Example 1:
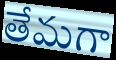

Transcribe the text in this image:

తేమగా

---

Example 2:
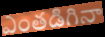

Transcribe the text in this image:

ఎంతడిగినా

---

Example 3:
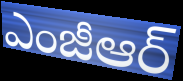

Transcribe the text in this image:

ఎంజీఆర్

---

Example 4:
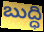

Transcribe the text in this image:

బుద్ధి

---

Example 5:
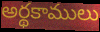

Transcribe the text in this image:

అర్థకాములు